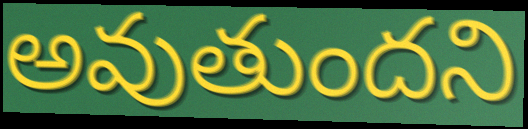
అవుతుందని